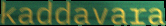
kaddavara